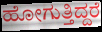
ಹೋಗುತ್ತಿದ್ದರೆ